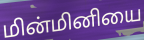
மின்மினியை